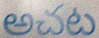
అచట